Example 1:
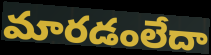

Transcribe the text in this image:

మారడంలేదా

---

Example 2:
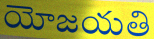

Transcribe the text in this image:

యోజయతి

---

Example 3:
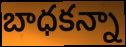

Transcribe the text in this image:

బాధకన్నా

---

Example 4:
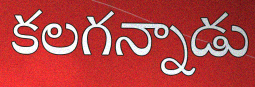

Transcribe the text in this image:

కలగన్నాడు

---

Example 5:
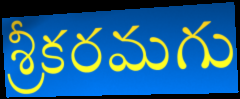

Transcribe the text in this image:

శ్రీకరమగు